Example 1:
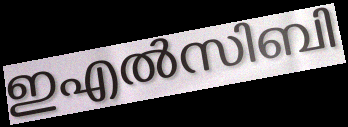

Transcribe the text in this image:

ഇഎൽസിബി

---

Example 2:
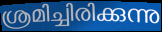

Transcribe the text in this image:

ശ്രമിച്ചിരിക്കുന്നു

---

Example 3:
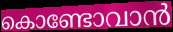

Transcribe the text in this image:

കൊണ്ടോവാൻ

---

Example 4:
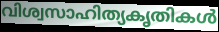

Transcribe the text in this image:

വിശ്വസാഹിത്യകൃതികൾ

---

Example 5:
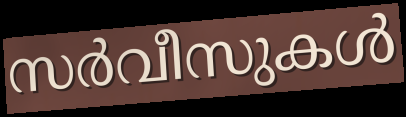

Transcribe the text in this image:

സർവീസുകൾ